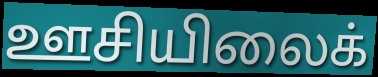
ஊசியிலைக்